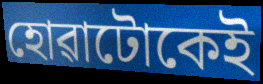
হোৱাটোকেই